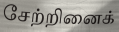
சேற்றினைக்